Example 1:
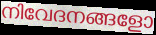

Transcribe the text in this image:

നിവേദനങ്ങളോ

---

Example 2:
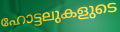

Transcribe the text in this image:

ഹോട്ടലുകളുടെ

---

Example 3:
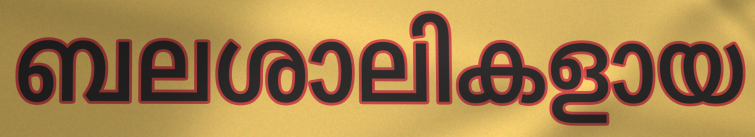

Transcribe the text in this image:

ബലശാലികളായ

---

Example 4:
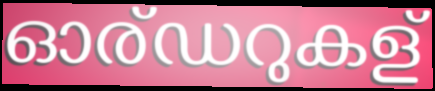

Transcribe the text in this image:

ഓര്ഡറുകള്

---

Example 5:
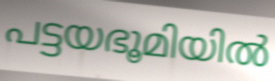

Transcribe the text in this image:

പട്ടയഭൂമിയിൽ